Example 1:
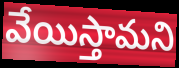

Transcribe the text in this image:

వేయిస్తామని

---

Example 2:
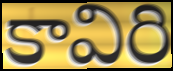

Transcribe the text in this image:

కావిరి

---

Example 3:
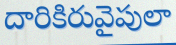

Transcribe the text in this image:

దారికిరువైపులా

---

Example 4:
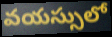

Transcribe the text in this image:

వయస్సులో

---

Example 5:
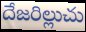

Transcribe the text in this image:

దేజరిల్లుచు